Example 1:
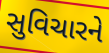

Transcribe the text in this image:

સુવિચારને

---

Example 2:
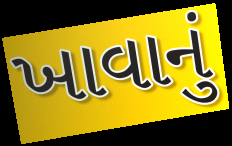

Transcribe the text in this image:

ખાવાનું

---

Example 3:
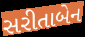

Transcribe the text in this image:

સરીતાબેન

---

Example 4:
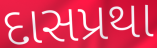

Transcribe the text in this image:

દાસપ્રથા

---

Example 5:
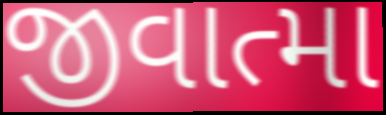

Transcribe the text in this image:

જીવાત્મા